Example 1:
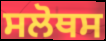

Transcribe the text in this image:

ਸਲੋਥਸ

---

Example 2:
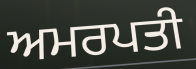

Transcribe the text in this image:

ਅਮਰਪਤੀ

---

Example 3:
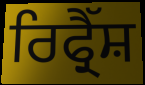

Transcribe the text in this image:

ਰਿਫ੍ਰੈੱਸ਼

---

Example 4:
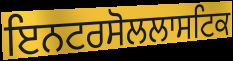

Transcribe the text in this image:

ਇਨਟਰਸੋਲਲਾਸਟਿਕ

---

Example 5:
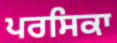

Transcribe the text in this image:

ਪਰਸਿਕਾ